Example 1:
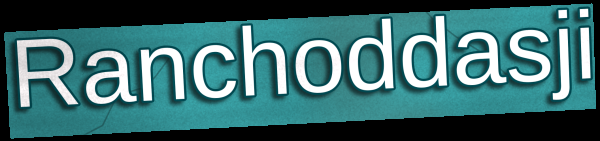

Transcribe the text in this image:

Ranchoddasji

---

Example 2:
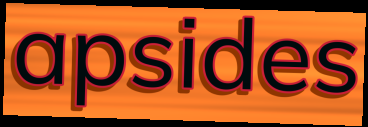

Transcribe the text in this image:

apsides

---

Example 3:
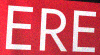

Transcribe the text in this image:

ERE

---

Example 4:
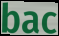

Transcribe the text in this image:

bac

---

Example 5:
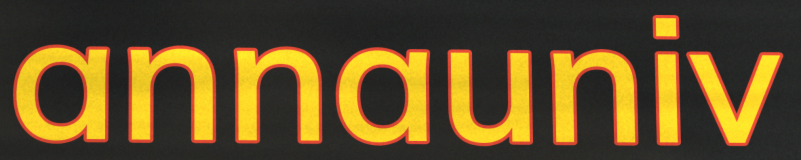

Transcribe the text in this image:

annauniv